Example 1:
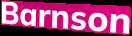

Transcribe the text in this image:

Barnson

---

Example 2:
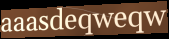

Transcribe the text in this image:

aaasdeqweqw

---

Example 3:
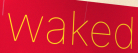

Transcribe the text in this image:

waked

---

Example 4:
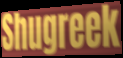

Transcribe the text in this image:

Shugreek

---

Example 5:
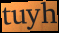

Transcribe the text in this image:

tuyh